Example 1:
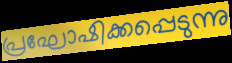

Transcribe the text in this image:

പ്രഘോഷിക്കപ്പെടുന്നു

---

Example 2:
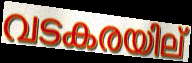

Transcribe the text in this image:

വടകരയില്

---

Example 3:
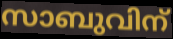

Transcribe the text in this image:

സാബുവിന്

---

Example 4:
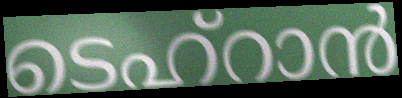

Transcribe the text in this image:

ടെഹ്റാൻ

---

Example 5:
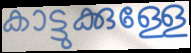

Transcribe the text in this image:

കാട്ടുക്കുള്ളേ